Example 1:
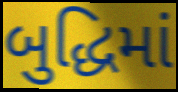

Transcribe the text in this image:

બુદ્ધિમાં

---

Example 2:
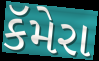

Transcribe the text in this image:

કૅમેરા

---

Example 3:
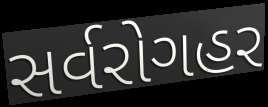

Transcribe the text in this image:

સર્વરોગહર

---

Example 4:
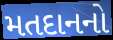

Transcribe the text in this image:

મતદાનનો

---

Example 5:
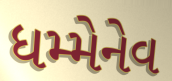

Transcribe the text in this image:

ધમ્મેનેવ